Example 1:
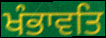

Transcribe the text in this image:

ਖੰਭਾਵਤਿ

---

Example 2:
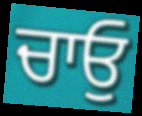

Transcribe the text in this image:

ਚਾਓੁ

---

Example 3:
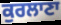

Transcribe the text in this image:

ਕੁਰਲਾਣਾ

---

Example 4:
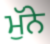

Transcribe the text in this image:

ਮੁੱਨੇ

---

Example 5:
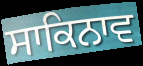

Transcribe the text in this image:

ਸਾਕਿਨਾਵ